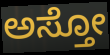
ಅಸ್ತೋ